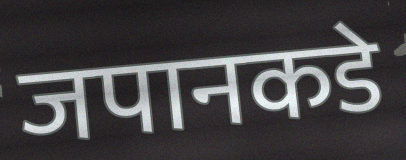
जपानकडे